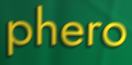
phero